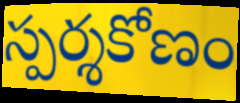
స్పర్శకోణం